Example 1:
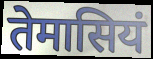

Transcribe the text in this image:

तेमासियं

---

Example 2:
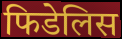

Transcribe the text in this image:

फिडेलिस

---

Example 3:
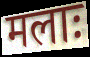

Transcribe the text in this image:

मलाः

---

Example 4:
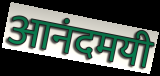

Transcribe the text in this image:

आनंदमयी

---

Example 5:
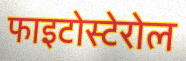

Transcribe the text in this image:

फाइटोस्टेरोल